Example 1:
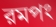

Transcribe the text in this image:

রমপং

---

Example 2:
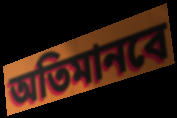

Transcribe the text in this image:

অতিমানবে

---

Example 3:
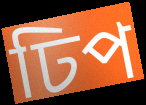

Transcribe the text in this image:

ঢিপ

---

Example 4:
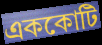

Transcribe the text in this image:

এককোটি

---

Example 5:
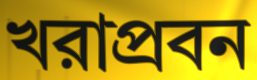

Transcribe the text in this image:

খরাপ্রবন